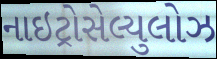
નાઇટ્રોસેલ્યુલોઝ